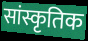
सांस्कृतिक